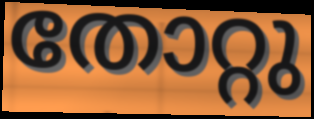
തോറ്റു